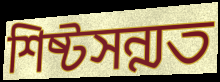
শিষ্টসন্মত